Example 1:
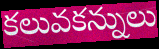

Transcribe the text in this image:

కలువకన్నులు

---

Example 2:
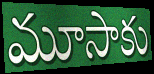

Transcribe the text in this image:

మూసాకు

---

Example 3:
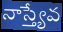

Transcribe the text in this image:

నాస్త్యేవ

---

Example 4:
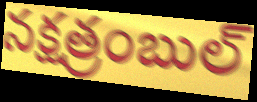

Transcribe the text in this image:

నక్షత్రంబుల్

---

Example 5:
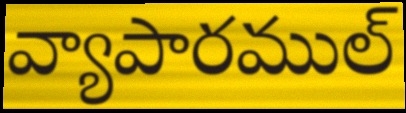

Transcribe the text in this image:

వ్యాపారముల్